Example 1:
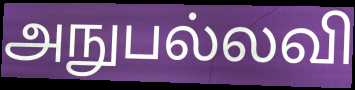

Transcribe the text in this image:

அநுபல்லவி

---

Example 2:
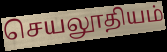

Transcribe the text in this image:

செயலூதியம்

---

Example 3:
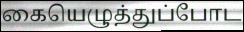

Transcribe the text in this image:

கையெழுத்துப்போட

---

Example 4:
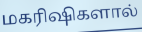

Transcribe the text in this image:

மகரிஷிகளால்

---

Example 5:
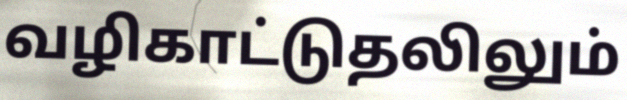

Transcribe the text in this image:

வழிகாட்டுதலிலும்